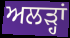
ਅਲੜ੍ਹਾਂ